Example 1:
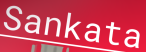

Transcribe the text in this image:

Sankata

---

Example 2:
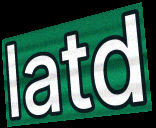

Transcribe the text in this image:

latd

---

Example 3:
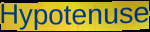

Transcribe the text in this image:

Hypotenuse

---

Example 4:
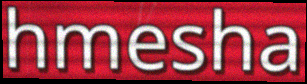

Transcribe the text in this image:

hmesha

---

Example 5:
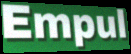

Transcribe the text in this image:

Empul